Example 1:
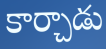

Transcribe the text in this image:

కార్చాడు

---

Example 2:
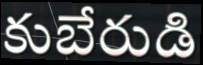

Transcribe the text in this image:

కుబేరుడి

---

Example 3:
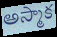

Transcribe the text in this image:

అస్మాక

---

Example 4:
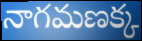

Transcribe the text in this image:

నాగమణక్క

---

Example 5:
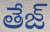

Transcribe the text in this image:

తేజ్